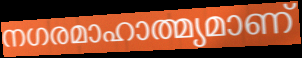
നഗരമാഹാത്മ്യമാണ്